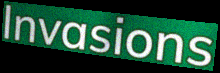
Invasions